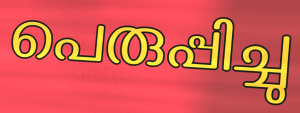
പെരുപ്പിച്ചു